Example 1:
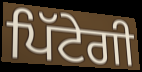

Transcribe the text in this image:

ਪਿੱਟੇਗੀ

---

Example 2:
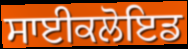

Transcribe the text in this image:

ਸਾਈਕਲੋਇਡ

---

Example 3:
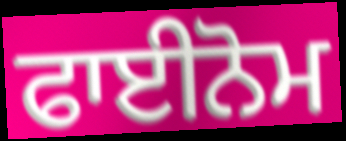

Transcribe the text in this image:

ਫਾਈਨੋਮ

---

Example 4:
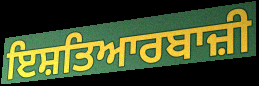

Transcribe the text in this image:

ਇਸ਼ਤਿਆਰਬਾਜ਼ੀ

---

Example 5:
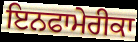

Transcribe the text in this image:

ਇਨਫਾਮੇਰੀਕਾ